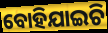
ବୋହିଯାଇଚି